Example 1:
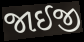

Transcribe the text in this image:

જાઈજી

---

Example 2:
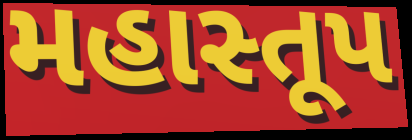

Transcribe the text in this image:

મહાસ્તૂપ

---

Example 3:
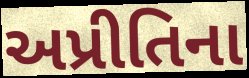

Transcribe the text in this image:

અપ્રીતિના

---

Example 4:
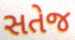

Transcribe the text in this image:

સતેજ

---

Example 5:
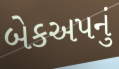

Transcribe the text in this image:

બેકઅપનું